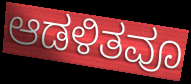
ಆಡಳಿತವೂ